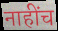
नाहींच